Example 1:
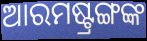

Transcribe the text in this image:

ଆରମଷ୍ଟ୍ରଙ୍ଗଙ୍କ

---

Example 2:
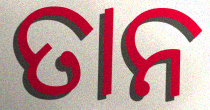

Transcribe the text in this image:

ତାନ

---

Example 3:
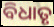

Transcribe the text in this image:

ବିଧାତୃ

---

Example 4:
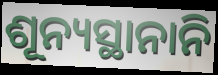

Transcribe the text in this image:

ଶୂନ୍ୟସ୍ଥାନାନି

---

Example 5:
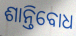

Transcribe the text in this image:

ଶାନ୍ତିବୋଧ